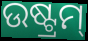
ଉଷ୍ଟ୍ରମ୍